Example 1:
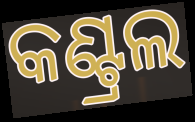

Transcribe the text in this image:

କଣ୍ଟ୍ରଲ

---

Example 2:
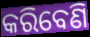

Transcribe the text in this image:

କରିବେଣି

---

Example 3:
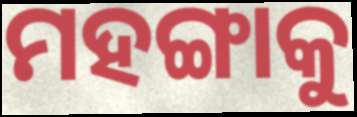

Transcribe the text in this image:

ମହଙ୍ଗାକୁ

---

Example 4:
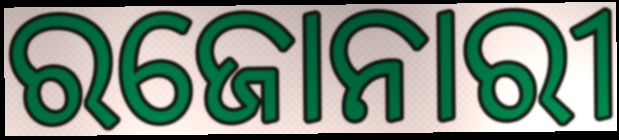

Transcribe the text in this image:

ରଜୋନାରୀ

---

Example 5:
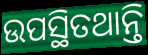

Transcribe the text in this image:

ଉପସ୍ଥିତଥାନ୍ତି